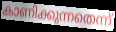
കാണിക്കുന്നതെന്ന്